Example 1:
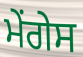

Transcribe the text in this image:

ਮੇਂਗੇਸ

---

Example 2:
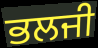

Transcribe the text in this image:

ਭਲਜੀ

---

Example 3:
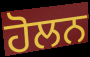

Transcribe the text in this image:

ਹੋਲਨ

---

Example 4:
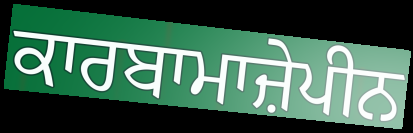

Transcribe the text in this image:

ਕਾਰਬਾਮਾਜ਼ੇਪੀਨ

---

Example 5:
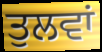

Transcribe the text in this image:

ਤੁਲਵਾਂ